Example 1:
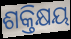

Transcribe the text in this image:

ଶକ୍ତିକ୍ଷୟ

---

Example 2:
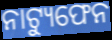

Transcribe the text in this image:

ନାଟ୍ୟୁଫେନ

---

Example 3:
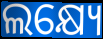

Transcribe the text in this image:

ଲକ୍ଷ୍ୟେ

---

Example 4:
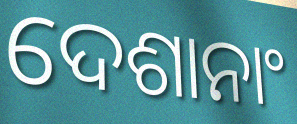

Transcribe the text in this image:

ଦେଶାନାଂ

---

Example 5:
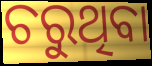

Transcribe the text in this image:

ଚରୁଥିବା